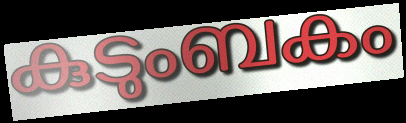
കുടുംബകം